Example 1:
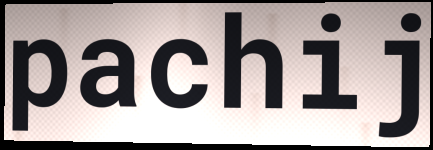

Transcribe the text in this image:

pachij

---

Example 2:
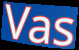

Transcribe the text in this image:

Vas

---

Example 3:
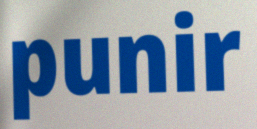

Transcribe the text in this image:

punir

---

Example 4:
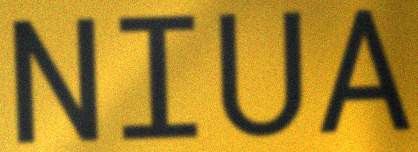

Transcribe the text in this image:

NIUA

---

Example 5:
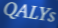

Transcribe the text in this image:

QALYs